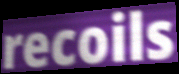
recoils